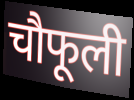
चौफूली